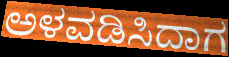
ಅಳವಡಿಸಿದಾಗ